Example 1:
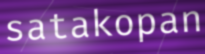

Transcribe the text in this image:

satakopan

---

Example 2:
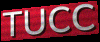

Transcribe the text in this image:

TUCC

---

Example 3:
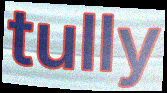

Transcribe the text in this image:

tully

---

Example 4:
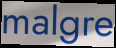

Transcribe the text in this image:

malgre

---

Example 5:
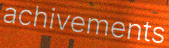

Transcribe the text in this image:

achivements